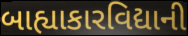
બાહ્યાકારવિદ્યાની